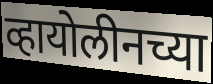
व्हायोलीनच्या